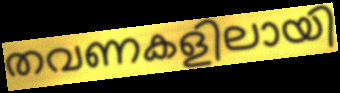
തവണകളിലായി